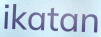
ikatan